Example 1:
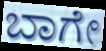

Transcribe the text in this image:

ಬಾಗೇ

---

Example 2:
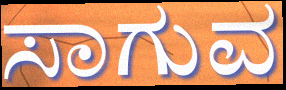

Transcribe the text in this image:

ಸಾಗುವ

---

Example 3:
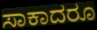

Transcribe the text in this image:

ಸಾಕಾದರೂ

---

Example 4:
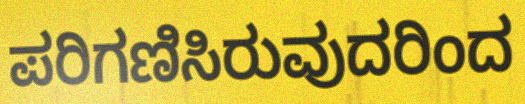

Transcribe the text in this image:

ಪರಿಗಣಿಸಿರುವುದರಿಂದ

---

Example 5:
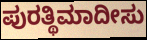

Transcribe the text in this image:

ಪುರತ್ಥಿಮಾದೀಸು